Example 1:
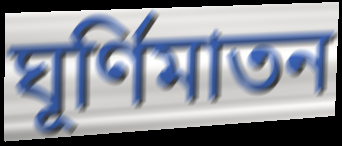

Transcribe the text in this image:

ঘূর্ণিমাতন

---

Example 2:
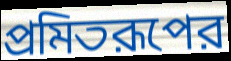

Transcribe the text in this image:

প্রমিতরূপের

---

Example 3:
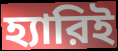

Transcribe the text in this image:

হ্যারিই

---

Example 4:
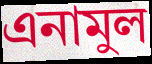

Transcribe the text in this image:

এনামুল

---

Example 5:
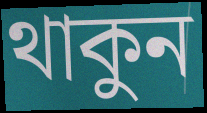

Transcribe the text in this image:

থাকুন